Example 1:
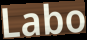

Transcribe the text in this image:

Labo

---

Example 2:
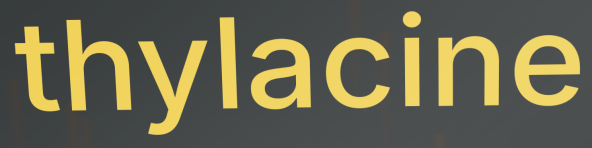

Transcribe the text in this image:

thylacine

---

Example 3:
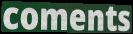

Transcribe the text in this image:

coments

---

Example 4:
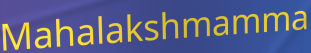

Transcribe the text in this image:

Mahalakshmamma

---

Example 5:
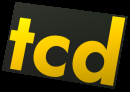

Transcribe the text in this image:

tcd